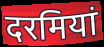
दरमियां